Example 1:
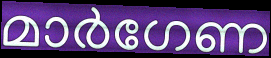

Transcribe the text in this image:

മാർഗേണ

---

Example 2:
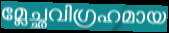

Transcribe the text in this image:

മ്ലേച്ഛവിഗ്രഹമായ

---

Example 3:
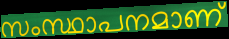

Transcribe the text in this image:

സംസ്ഥാപനമാണ്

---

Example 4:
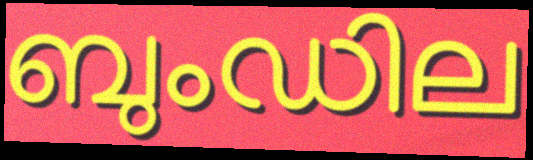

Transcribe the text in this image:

ബുംഡില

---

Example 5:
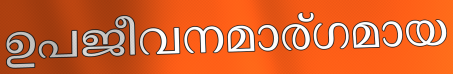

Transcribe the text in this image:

ഉപജീവനമാര്ഗമായ